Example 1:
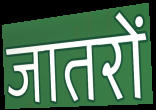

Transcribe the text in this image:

जातरों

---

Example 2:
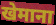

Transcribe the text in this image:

खेमाना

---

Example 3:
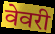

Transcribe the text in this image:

वेवरी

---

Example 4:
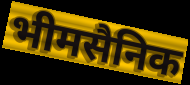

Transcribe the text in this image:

भीमसैनिक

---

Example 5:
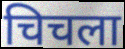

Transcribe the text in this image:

चिचला